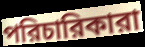
পরিচারিকারা